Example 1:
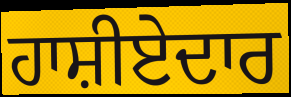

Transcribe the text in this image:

ਹਾਸ਼ੀਏਦਾਰ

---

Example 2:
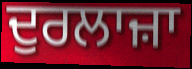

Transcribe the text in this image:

ਦੁਰਲਾਜ਼ਾ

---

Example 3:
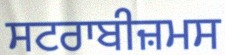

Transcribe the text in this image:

ਸਟਰਾਬੀਜ਼ਮਸ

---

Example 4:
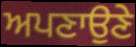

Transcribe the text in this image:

ਅਪਣਾਉਣੇ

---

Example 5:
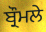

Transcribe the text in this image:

ਬ੍ਰੌਮਲੇ